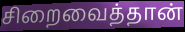
சிறைவைத்தான்